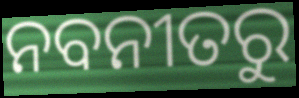
ନବନୀତରୁ